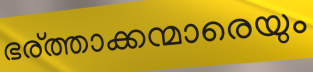
ഭര്ത്താക്കന്മാരെയും